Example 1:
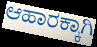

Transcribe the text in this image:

ಆಹಾರಕ್ಕಾಗಿ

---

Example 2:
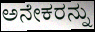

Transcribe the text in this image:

ಅನೇಕರನ್ನು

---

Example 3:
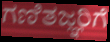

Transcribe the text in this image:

ಗಣಿತಜ್ಞರಿಗೆ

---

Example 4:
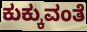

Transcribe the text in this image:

ಕುಕ್ಕುವಂತೆ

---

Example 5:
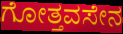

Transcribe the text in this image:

ಗೋತ್ತವಸೇನ